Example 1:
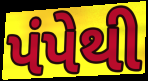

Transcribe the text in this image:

પંપેથી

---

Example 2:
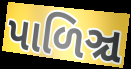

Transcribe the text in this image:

પાળિઞ્ચ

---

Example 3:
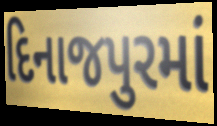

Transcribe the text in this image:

દિનાજપુરમાં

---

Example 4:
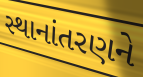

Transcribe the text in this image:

સ્થાનાંતરણને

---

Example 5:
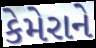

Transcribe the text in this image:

કેમેરાને